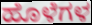
ಹೊಳೆಗಳ